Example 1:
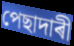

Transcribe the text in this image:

পেছাদাৰী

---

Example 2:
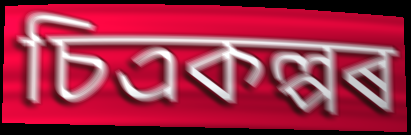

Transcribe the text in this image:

চিত্ৰকল্পৰ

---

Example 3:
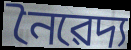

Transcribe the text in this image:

নৈৱেদ্য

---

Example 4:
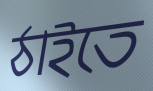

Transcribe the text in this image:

ঠাইতে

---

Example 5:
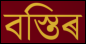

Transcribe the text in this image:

বস্তিৰ